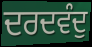
ਦਰਦਵੰਦੁ